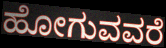
ಹೋಗುವವರೆ